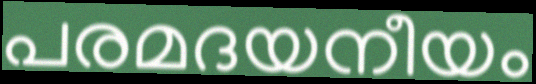
പരമദയനീയം